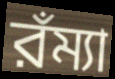
রঁম্যা